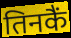
तिनकैं